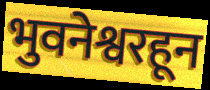
भुवनेश्वरहून